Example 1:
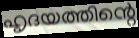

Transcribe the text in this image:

ഹൃദയത്തിന്റെ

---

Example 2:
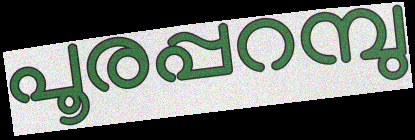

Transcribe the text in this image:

പൂരപ്പറമ്പു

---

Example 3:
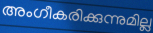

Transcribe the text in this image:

അംഗീകരിക്കുന്നുമില്ല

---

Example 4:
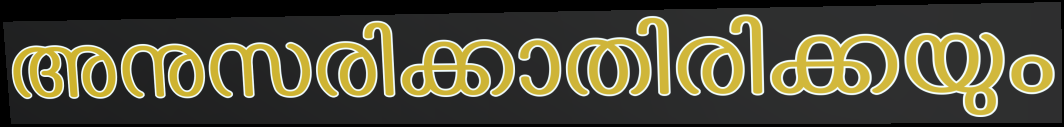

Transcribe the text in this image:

അനുസരിക്കാതിരിക്കയും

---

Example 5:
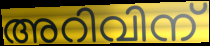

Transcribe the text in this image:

അറിവിന്